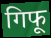
गिफू